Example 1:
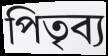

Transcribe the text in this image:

পিতৃব্য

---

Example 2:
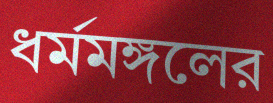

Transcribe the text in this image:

ধর্মমঙ্গলের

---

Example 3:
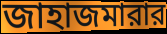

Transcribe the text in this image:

জাহাজমারার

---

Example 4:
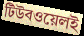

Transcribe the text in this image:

টিউবওয়েলই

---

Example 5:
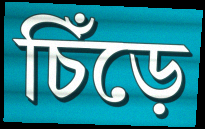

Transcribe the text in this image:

চিঁড়ে